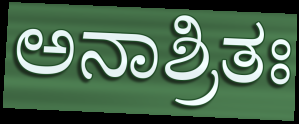
ಅನಾಶ್ರಿತಃ